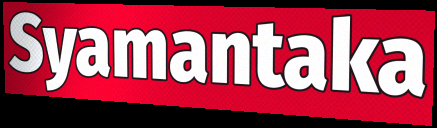
Syamantaka